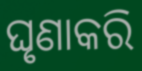
ଘୃଣାକରି